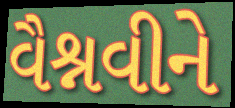
વૈશ્નવીને